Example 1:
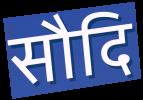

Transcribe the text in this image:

सौदि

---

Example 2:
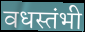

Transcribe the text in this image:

वधस्तंभी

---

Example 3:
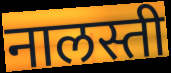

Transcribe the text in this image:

नालस्ती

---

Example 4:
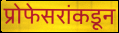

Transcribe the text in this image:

प्रोफेसरांकडून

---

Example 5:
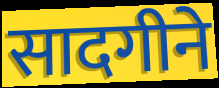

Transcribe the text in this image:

सादगीने